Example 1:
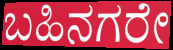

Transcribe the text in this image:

ಬಹಿನಗರೇ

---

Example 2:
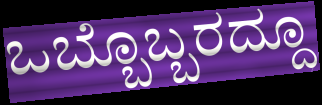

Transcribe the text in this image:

ಒಬ್ಬೊಬ್ಬರದ್ದೂ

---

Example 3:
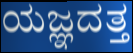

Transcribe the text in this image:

ಯಜ್ಞದತ್ತ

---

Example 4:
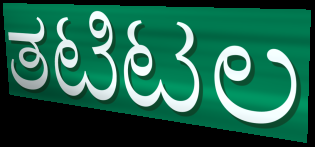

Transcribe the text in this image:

ತಟಿಟಲ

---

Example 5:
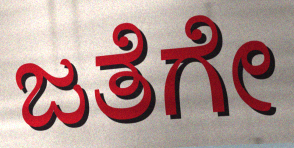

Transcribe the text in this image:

ಜತೆಗೇ